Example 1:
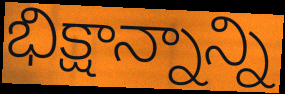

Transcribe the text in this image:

భిక్షాన్నాన్ని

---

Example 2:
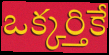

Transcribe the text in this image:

ఒక్కర్తికే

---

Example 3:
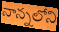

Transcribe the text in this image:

నాన్నలోని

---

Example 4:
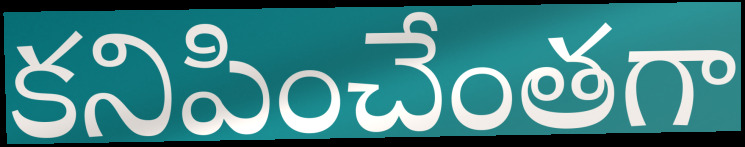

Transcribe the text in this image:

కనిపించేంతగా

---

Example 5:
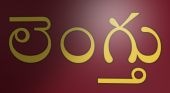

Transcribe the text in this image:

లెంగ్తు